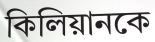
কিলিয়ানকে